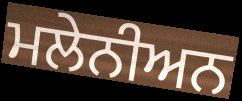
ਮਲੇਨੀਅਨ